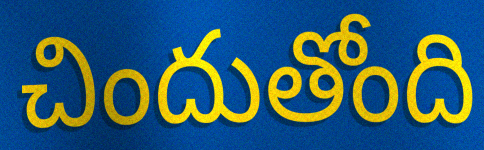
చిందుతోంది